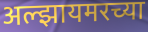
अल्झायमरच्या